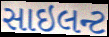
સાઇલન્ટ